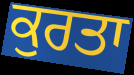
ਕੁਰਤਾ